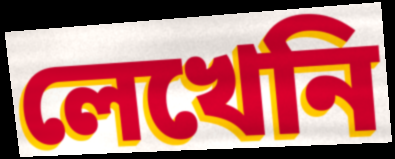
লেখেনি